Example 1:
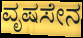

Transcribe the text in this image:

ವೃಷಸೇನ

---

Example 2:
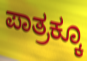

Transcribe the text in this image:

ಪಾತ್ರಕ್ಕೂ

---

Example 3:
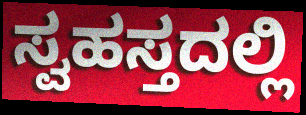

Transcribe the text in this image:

ಸ್ವಹಸ್ತದಲ್ಲಿ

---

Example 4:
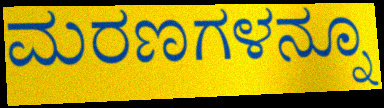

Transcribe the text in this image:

ಮರಣಗಳನ್ನೂ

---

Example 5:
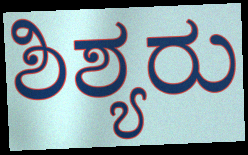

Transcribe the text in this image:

ಶಿಶ್ಯರು